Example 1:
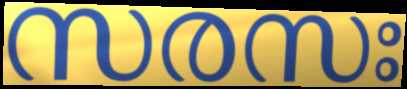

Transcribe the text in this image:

സരസഃ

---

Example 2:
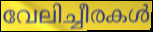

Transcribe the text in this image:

വേലിച്ചീരകൾ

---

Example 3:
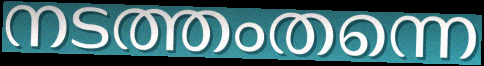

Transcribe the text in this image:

നടത്തംതന്നെ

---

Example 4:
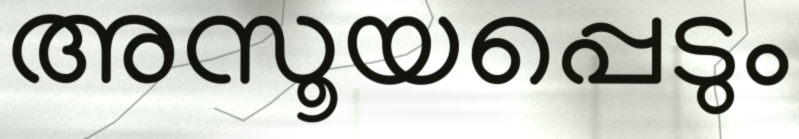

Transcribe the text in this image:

അസൂയപ്പെടും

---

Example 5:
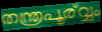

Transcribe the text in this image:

തന്ത്രപൂര്വ്വം